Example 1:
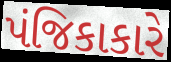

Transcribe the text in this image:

પંજિકાકારે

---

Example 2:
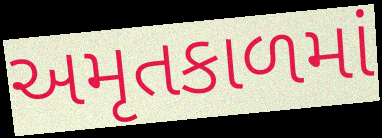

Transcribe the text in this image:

અમૃતકાળમાં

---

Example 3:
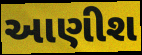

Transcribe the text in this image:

આણીશ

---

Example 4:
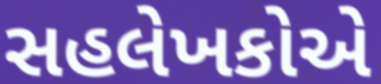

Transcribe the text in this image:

સહલેખકોએ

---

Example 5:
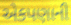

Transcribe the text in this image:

એકપણાની